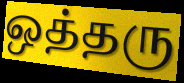
ஒத்தரு